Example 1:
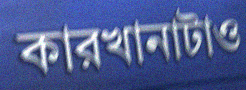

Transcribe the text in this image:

কারখানাটাও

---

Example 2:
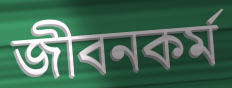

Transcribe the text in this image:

জীবনকর্ম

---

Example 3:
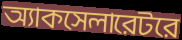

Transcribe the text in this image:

অ্যাকসেলারেটরে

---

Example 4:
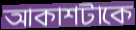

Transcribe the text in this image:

আকাশটাকে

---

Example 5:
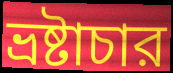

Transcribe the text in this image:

ভ্রষ্টাচার